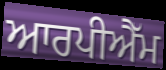
ਆਰਪੀਐੱਮ